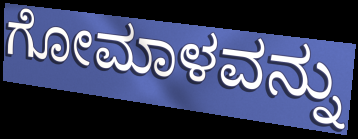
ಗೋಮಾಳವನ್ನು